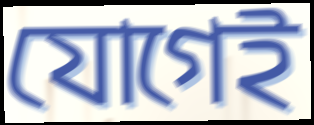
যোগেই